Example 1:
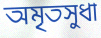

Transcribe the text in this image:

অমৃতসুধা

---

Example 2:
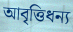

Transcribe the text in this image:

আবৃত্তিধন্য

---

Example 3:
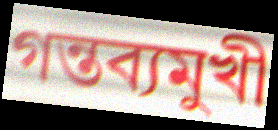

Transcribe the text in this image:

গন্তব্যমুখী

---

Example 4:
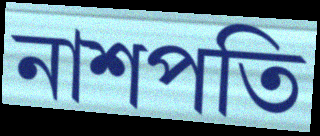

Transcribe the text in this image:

নাশপতি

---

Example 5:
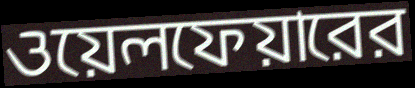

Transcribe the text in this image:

ওয়েলফেয়ারের